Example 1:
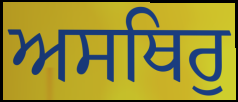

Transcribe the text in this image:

ਅਸਥਿਰੁ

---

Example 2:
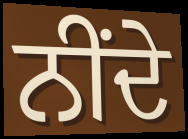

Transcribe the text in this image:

ਨੀਂਦੇ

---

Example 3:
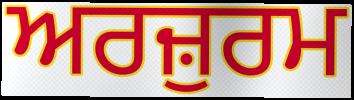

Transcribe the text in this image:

ਅਰਜ਼ੁਰਮ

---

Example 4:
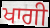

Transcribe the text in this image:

ਖਾਗੀ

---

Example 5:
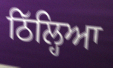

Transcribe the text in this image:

ਠਿੱਲ੍ਹਿਆ